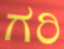
ಗರಿ